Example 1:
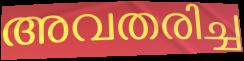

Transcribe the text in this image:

അവതരിച്ച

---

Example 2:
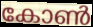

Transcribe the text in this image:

കോൺ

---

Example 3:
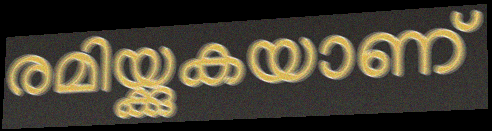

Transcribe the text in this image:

രമിയ്ക്കുകയാണ്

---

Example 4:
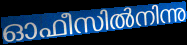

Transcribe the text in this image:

ഓഫീസിൽനിന്നു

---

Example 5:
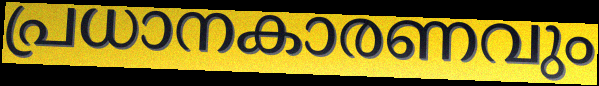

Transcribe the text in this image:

പ്രധാനകാരണവും